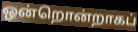
ஒன்றொன்றாகப்